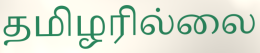
தமிழரில்லை